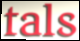
tals